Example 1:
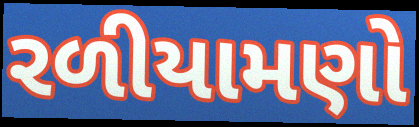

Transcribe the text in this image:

રળીયામણો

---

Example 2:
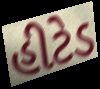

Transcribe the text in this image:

હીટેડ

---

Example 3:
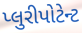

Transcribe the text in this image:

પ્લુરીપોટેન્ટ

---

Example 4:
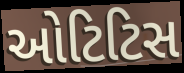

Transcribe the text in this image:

ઓટિટિસ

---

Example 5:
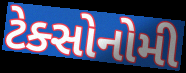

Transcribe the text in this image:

ટેક્સોનોમી